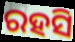
ରହସି